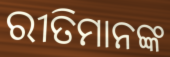
ରୀତିମାନଙ୍କ